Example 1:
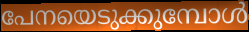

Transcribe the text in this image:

പേനയെടുക്കുമ്പോൾ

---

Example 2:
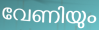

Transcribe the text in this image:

വേണിയും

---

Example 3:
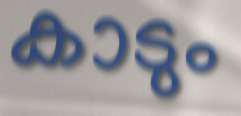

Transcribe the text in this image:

കാടും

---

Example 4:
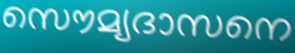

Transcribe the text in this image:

സൌമ്യദാസനെ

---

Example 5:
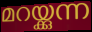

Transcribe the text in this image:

മറയ്ക്കുന്ന